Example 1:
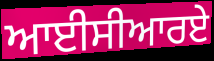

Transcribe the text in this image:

ਆਈਸੀਆਰਏ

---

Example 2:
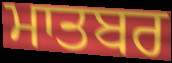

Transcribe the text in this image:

ਮਾਤਬਰ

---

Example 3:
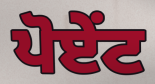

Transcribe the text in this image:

ਪੋਏਂਟ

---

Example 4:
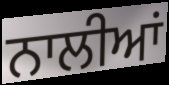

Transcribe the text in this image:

ਨਾਲੀਆਂ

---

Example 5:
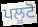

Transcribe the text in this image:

ਪਲੂਟੋ